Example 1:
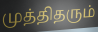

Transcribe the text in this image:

முத்திதரும்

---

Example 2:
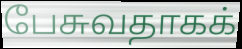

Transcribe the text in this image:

பேசுவதாகக்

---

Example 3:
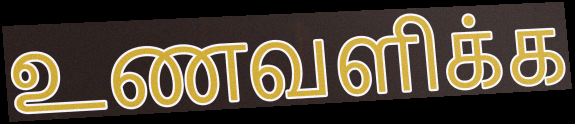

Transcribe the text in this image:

உணவளிக்க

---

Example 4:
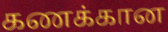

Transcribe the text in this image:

கணக்கான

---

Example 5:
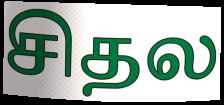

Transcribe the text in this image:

சிதல